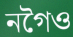
নগৈও